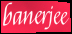
banerjee